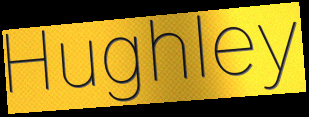
Hughley